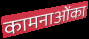
कामनाओंका